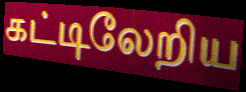
கட்டிலேறிய